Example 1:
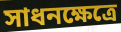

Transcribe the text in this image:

সাধনক্ষেত্রে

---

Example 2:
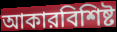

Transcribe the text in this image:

আকারবিশিষ্ট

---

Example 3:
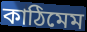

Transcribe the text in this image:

কাঠিমেম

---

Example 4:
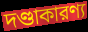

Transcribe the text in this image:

দণ্ডাকারণ্য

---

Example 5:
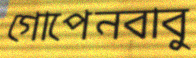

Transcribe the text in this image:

গোপেনবাবু